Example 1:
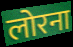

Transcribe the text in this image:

लोरना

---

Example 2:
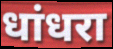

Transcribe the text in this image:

धांधरा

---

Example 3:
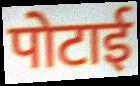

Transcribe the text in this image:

पोटाई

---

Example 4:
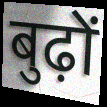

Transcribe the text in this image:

बुढ़ों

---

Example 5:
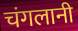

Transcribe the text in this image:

चंगलानी